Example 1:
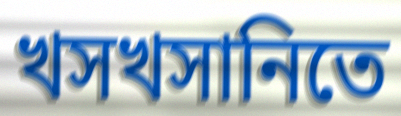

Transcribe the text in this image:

খসখসানিতে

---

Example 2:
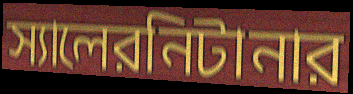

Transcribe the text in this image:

স্যালেরনিটানার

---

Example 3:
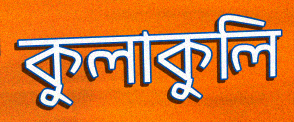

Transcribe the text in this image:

কুলাকুলি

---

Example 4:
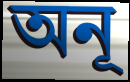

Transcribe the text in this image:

অনূ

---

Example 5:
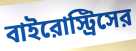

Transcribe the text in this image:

বাইরোস্ট্রিসের